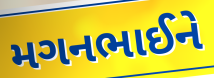
મગનભાઈને